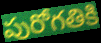
పురోగతికి